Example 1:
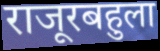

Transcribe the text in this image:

राजूरबहुला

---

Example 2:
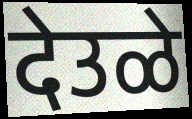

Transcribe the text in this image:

देउळे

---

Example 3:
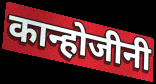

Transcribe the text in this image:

कान्होजीनी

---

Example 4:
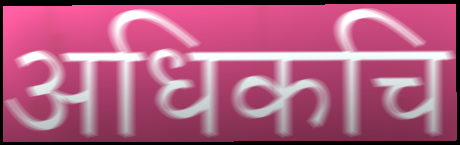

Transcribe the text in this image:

अधिकचि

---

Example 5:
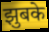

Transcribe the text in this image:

झुबके